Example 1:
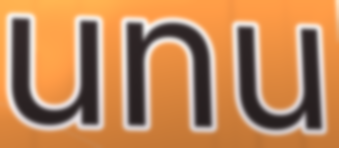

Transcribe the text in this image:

unu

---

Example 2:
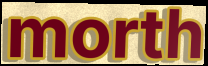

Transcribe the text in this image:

morth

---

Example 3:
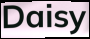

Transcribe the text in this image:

Daisy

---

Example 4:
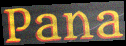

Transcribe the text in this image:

Pana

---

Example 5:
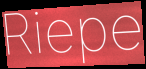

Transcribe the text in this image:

Riepe